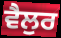
ਵੈਲੁਰ